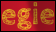
egie